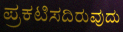
ಪ್ರಕಟಿಸದಿರುವುದು